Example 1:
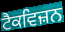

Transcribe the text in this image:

ਟੈਕਵਿਜ਼ਨ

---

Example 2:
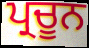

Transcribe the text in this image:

ਪ੍ਰਚੂਨ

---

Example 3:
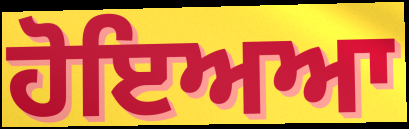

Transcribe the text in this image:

ਹੋਇਅਆ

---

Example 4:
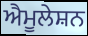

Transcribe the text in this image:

ਐਮੂਲੇਸ਼ਨ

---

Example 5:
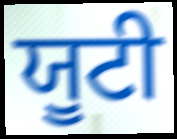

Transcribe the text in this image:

ਯੂਟੀ